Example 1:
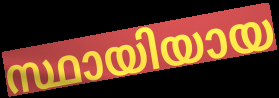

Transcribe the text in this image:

സ്ഥായിയായ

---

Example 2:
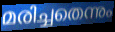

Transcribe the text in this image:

മരിച്ചതെന്നും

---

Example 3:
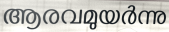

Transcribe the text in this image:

ആരവമുയർന്നു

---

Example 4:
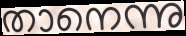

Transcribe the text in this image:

താനെന്നു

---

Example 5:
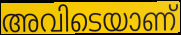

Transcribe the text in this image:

അവിടെയാണ്